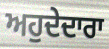
ਅਹੁਦੇਦਾਰਾ